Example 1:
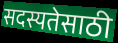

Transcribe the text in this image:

सदस्यतेसाठी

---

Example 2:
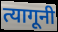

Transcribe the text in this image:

त्यागूनी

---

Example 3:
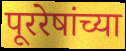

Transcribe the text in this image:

पूररेषांच्या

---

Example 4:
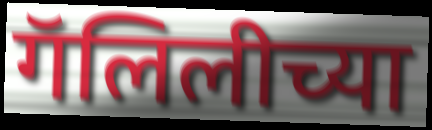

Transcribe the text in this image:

गॅलिलीच्या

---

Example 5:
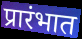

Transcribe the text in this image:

प्रारंभात